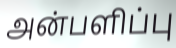
அன்பளிப்பு